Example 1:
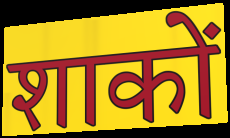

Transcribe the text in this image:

शाकों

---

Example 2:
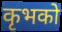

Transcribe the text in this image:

कृभको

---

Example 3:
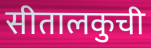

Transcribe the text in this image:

सीतालकुची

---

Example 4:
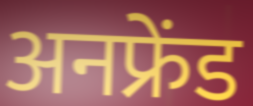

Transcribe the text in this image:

अनफ्रेंड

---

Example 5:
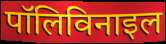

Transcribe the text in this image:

पॉलिविनाइल